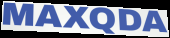
MAXQDA